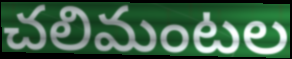
చలిమంటల